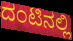
ದಂಟಿನಲ್ಲಿ